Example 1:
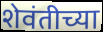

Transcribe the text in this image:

शेवंतीच्या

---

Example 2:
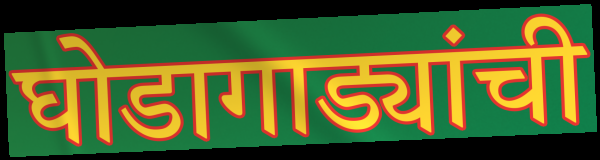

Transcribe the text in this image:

घोडागाड्यांची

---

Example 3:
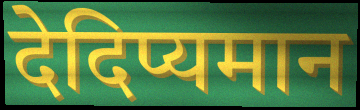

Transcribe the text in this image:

देदिप्यमान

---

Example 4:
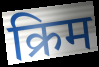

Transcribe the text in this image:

क्रिम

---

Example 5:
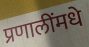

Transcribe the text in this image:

प्रणालींमधे